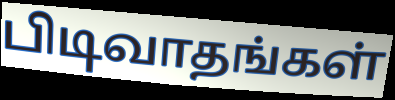
பிடிவாதங்கள்